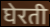
घेरती